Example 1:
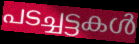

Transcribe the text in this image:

പടച്ചട്ടകൾ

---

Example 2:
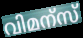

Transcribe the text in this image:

വിമന്സ്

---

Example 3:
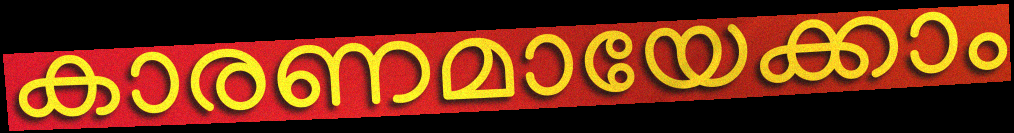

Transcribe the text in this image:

കാരണമായേക്കാം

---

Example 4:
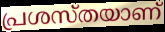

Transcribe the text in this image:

പ്രശസ്തയാണ്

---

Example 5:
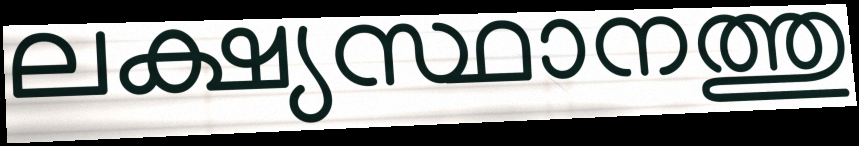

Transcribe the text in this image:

ലക്ഷ്യസ്ഥാനത്തു